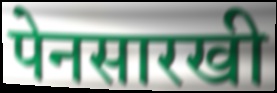
पेनसारखी